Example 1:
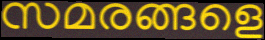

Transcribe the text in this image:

സമരങ്ങളെ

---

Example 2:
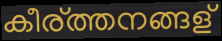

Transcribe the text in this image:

കീര്ത്തനങ്ങള്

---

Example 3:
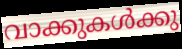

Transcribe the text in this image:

വാക്കുകൾക്കു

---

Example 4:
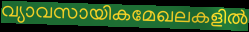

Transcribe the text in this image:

വ്യാവസായികമേഖലകളിൽ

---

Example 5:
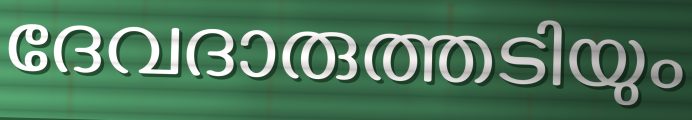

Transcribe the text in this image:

ദേവദാരുത്തടിയും